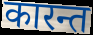
कारन्त